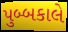
પુબ્બકાલે